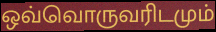
ஒவ்வொருவரிடமும்